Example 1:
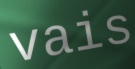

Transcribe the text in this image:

vais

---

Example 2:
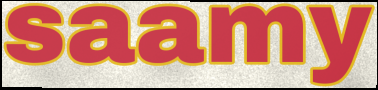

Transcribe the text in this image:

saamy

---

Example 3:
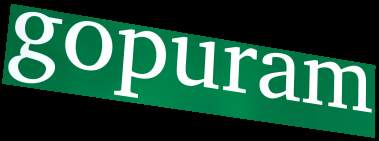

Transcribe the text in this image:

gopuram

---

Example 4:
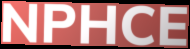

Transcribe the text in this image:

NPHCE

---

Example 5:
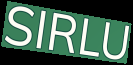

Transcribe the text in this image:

SIRLU